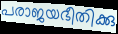
പരാജയഭീതിക്കു